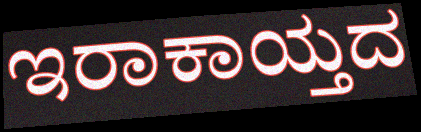
ಇರಾಕಾಯ್ತದ